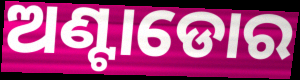
ଅଣ୍ଟାଡୋର